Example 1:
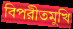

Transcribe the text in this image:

বিপরীতমুখি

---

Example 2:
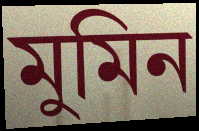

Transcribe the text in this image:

মুমিন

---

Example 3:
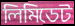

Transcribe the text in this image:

লিমিডেট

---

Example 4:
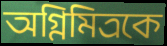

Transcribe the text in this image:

অগ্নিমিত্রকে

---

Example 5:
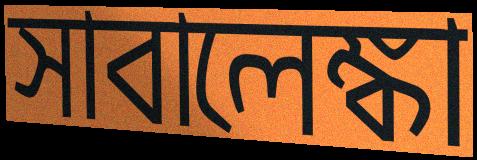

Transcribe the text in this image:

সাবালেঙ্কা